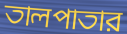
তালপাতার